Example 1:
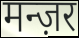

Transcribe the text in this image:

मन्ज़र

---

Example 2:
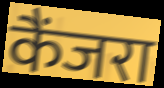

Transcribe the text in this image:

कैंजरा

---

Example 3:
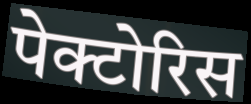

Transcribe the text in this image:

पेक्टोरिस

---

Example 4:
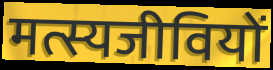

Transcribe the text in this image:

मत्स्यजीवियों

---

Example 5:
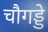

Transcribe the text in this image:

चौगड्डे